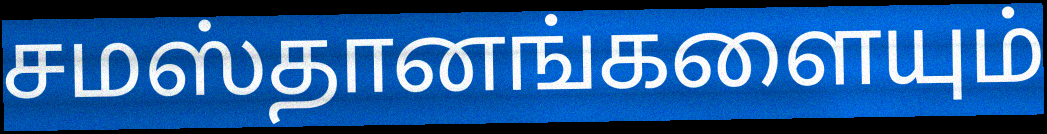
சமஸ்தானங்களையும்